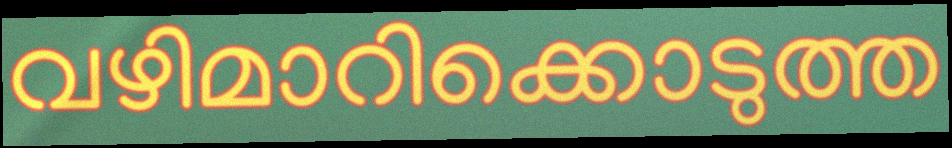
വഴിമാറിക്കൊടുത്ത